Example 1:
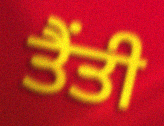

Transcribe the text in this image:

ਤੈਂਤੀ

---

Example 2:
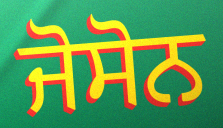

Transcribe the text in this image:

ਜੋਸੋਨ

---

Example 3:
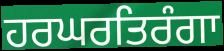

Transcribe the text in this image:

ਹਰਘਰਤਿਰੰਗਾ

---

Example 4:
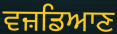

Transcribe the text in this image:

ਵਜ਼ਡਿਆਣ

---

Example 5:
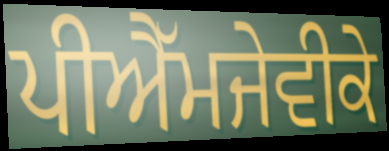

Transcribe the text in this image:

ਪੀਐੱਮਜੇਵੀਕੇ